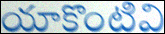
యాకొంటివి